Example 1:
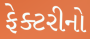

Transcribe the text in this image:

ફેક્ટરીનો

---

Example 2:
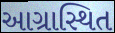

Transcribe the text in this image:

આગ્રાસ્થિત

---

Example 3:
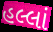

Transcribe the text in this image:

હલ્લાં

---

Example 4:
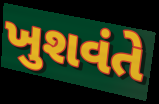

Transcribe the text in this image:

ખુશવંતે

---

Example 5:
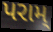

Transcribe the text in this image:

પરામ્